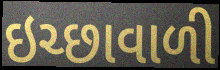
ઇચ્છાવાળી